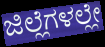
ಜಿಲ್ಲೆಗಳಲ್ಲೇ